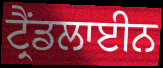
ਟ੍ਰੈਂਡਲਾਈਨ